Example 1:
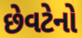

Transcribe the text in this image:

છેવટેનો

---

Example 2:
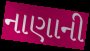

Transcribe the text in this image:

નાણાની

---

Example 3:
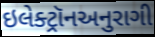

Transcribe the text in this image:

ઇલેક્ટ્રૉનઅનુરાગી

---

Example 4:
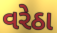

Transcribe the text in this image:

વરેઠા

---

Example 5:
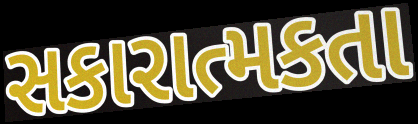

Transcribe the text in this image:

સકારાત્મકતા